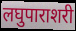
लघुपाराशरी